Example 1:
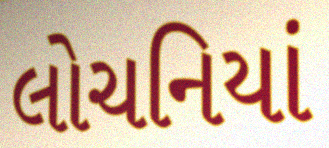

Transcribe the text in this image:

લોચનિયાં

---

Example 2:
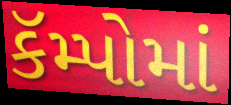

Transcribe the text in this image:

કૅમ્પોમાં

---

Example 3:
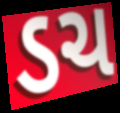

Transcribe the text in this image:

ડચ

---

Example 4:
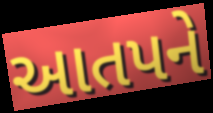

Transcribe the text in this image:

આતપને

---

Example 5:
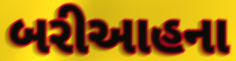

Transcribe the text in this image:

બરીઆહના